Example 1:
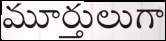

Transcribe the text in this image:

మూర్తులుగా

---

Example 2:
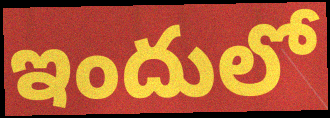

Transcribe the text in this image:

ఇందులో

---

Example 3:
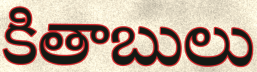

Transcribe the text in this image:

కితాబులు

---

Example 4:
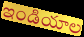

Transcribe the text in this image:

ఇండియాల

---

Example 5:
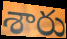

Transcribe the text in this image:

శారు